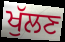
ਖੁੱਲਣ